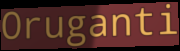
Oruganti